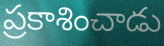
ప్రకాశించాడు